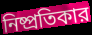
নিষ্প্রতিকার